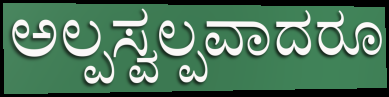
ಅಲ್ಪಸ್ವಲ್ಪವಾದರೂ